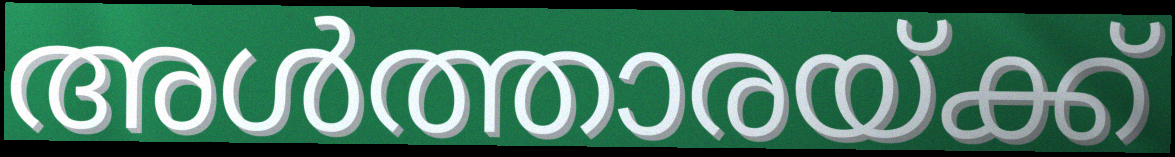
അൾത്താരയ്ക്ക്